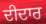
ਦੀਦਾਰ